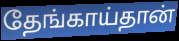
தேங்காய்தான்